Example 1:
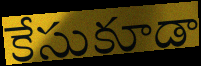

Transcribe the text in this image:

కేసుకూడా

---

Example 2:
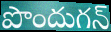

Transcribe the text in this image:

పొందుగన్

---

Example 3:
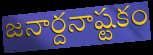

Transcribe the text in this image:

జనార్దనాష్టకం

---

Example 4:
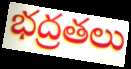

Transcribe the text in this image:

భద్రతలు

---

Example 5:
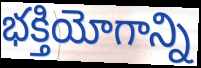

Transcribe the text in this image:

భక్తియోగాన్ని